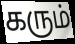
கரும்